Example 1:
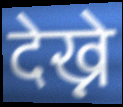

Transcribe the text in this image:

देख्ने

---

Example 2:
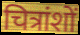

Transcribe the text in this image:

चित्रांशों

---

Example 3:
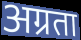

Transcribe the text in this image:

अग्रता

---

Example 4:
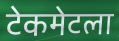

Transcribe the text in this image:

टेकमेटला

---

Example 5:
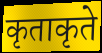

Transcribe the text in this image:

कृताकृते